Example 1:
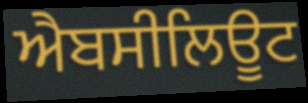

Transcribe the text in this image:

ਐਬਸੀਲਿਊਟ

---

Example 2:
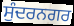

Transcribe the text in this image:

ਸੁੰਦਰਨਗਰ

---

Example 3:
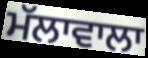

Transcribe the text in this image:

ਮੱਲਾਵਾਲਾ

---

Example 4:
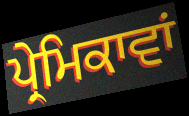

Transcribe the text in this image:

ਪ੍ਰੇਮਿਕਾਵਾਂ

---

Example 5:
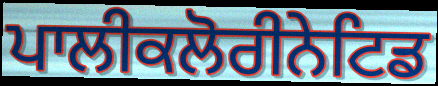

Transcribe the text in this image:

ਪਾਲੀਕਲੋਰੀਨੇਟਿਡ